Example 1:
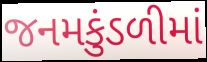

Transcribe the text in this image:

જનમકુંડળીમાં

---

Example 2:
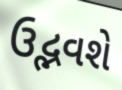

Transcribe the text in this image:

ઉદ્ભવશે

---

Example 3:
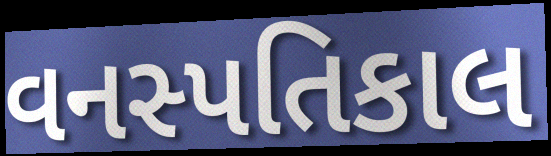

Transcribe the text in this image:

વનસ્પતિકાલ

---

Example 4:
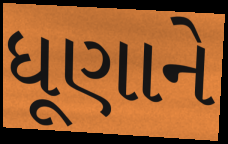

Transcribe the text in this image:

ધૂણાને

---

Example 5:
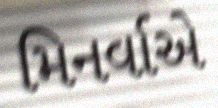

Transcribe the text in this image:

મિનર્વાએ